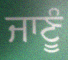
ਜਾਣੂੰ